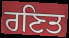
ਰਣਿਤ